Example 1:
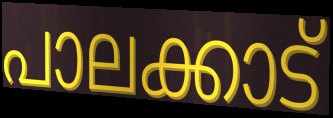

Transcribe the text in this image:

പാലക്കാട്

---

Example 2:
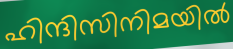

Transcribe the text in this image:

ഹിന്ദിസിനിമയിൽ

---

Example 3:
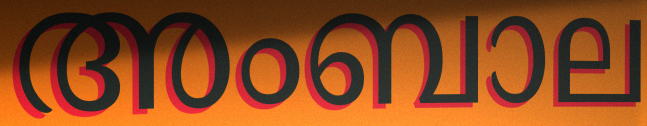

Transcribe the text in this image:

അംബാല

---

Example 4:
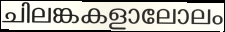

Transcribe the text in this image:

ചിലങ്കകളാലോലം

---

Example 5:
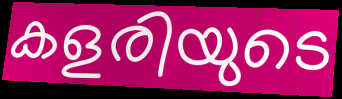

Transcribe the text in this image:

കളരിയുടെ